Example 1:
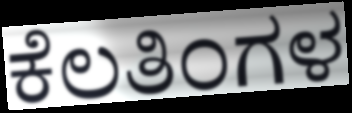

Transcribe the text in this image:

ಕೆಲತಿಂಗಳ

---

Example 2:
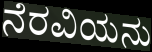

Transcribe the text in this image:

ನೆರವಿಯನು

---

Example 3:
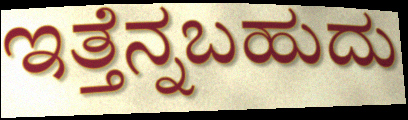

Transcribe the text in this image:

ಇತ್ತೆನ್ನಬಹುದು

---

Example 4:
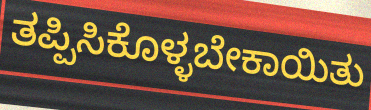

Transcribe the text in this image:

ತಪ್ಪಿಸಿಕೊಳ್ಳಬೇಕಾಯಿತು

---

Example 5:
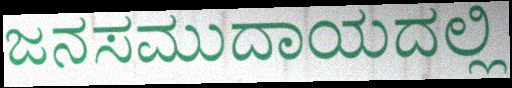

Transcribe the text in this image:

ಜನಸಮುದಾಯದಲ್ಲಿ